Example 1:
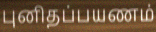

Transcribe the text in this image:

புனிதப்பயணம்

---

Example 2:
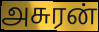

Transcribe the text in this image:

அசுரன்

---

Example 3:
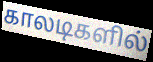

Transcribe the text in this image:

காலடிகளில்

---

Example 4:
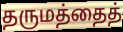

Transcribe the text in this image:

தருமத்தைத்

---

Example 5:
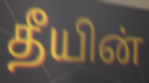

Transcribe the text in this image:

தீயின்